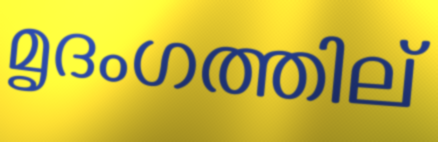
മൃദംഗത്തില്